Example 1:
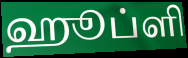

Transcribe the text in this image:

ஹூப்ளி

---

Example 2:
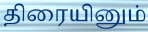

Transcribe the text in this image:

திரையினும்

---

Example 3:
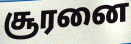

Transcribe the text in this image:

சூரனை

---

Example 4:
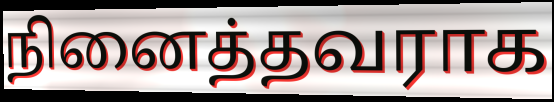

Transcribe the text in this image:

நினைத்தவராக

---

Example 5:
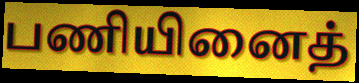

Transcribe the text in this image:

பணியினைத்